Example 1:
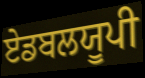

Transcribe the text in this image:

ਏਡਬਲਯੂਪੀ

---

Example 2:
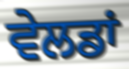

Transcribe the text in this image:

ਵੇਲਡਾਂ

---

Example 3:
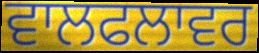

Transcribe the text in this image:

ਵਾਲਫਲਾਵਰ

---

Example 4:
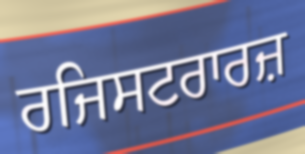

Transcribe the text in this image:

ਰਜਿਸਟਰਾਰਜ਼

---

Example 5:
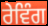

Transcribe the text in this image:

ਰੇਵਿੰਗ